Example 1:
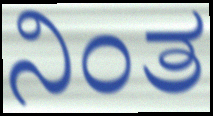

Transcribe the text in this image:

ನಿಂತ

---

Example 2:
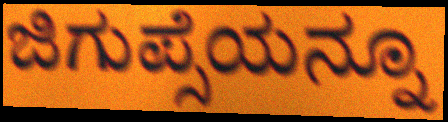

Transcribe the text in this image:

ಜಿಗುಪ್ಸೆಯನ್ನೂ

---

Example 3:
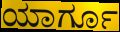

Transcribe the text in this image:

ಯಾರ್ಗೂ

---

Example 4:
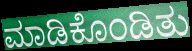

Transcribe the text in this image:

ಮಾಡಿಕೊಂಡಿತು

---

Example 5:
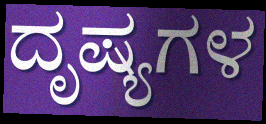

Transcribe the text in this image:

ದೃಷ್ಯಗಳ